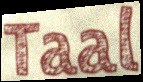
Taal